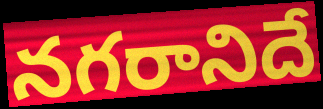
నగరానిదే